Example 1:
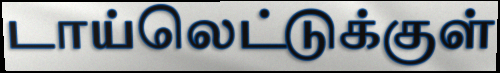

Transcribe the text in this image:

டாய்லெட்டுக்குள்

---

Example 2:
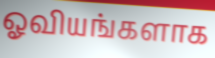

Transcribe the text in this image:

ஓவியங்களாக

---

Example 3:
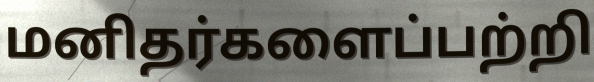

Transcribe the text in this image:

மனிதர்களைப்பற்றி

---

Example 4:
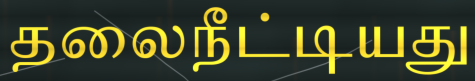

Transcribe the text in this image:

தலைநீட்டியது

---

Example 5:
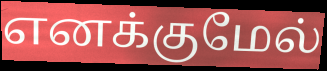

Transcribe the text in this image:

எனக்குமேல்